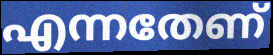
എന്നതേണ്